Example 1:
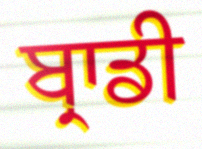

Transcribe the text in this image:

ਬ੍ਰਾਡੀ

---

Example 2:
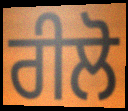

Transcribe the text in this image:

ਰੀਲੋ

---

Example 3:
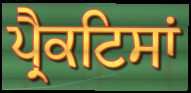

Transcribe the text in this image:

ਪ੍ਰੈਕਟਿਸਾਂ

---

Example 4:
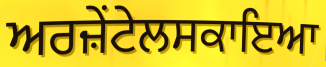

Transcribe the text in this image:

ਅਰਜ਼ੇਂਟੇਲਸਕਾਇਆ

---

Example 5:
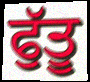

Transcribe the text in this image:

ਫੁੱਤੂ